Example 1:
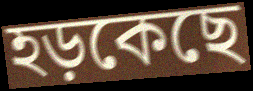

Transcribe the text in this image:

হড়কেছে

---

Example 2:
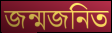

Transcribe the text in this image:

জন্মজনিত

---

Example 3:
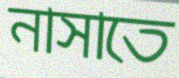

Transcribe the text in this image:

নাসাতে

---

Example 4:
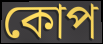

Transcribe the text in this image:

কোপ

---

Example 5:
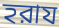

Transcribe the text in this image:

হরায